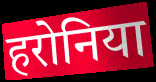
हरोनिया